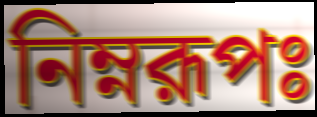
নিম্নরূপঃ